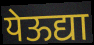
येऊद्या